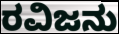
ರವಿಜನು